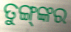
ତୁଙ୍ଗ୍‍ଙ୍କର